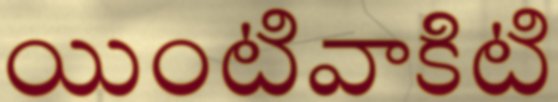
యింటివాకిటి